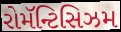
રોમૅન્ટિસિઝમ